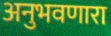
अनुभवणारा